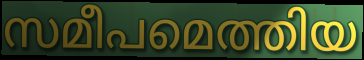
സമീപമെത്തിയ